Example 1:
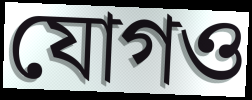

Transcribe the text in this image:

যোগও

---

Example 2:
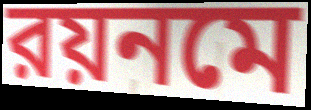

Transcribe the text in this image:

রয়নমে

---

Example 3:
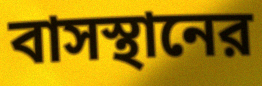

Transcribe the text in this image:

বাসস্থানের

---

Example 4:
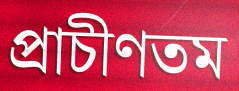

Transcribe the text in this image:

প্রাচীণতম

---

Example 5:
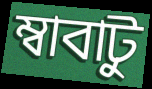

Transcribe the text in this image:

ম্বাবাটু